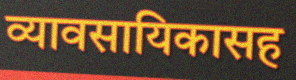
व्यावसायिकासह